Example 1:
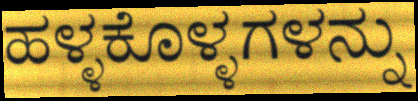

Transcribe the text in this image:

ಹಳ್ಳಕೊಳ್ಳಗಳನ್ನು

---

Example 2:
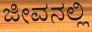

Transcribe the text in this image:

ಜೀವನಲ್ಲಿ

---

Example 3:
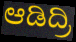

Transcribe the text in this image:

ಆಡಿದ್ರಿ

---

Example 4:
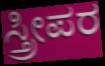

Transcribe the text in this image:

ಸ್ತ್ರೀಪರ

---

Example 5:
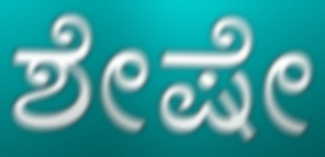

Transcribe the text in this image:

ಶೇಷೇ